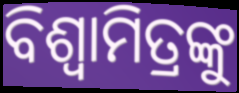
ବିଶ୍ଵାମିତ୍ରଙ୍କୁ